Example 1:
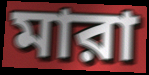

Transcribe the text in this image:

মারা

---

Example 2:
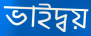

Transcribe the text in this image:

ভাইদ্বয়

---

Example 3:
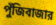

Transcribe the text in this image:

পুঁজিবাজার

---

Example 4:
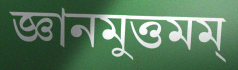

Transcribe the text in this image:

জ্ঞানমুত্তমম্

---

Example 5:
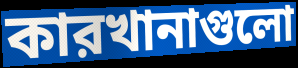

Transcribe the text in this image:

কারখানাগুলো